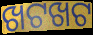
ଖଟଖଟ